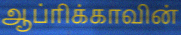
ஆப்ரிக்காவின்